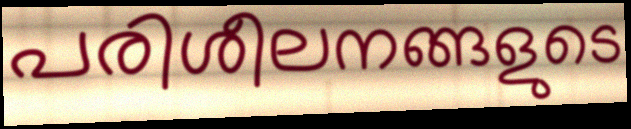
പരിശീലനങ്ങളുടെ